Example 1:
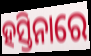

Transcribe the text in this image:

ହସ୍ତିନାରେ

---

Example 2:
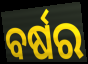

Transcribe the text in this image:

ବର୍ଷର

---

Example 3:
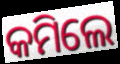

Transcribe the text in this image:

କମିଲେ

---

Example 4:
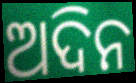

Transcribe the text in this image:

ଅଦିନ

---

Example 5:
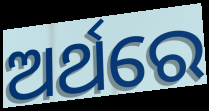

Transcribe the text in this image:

ଅର୍ଥରେ